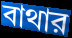
বাথার